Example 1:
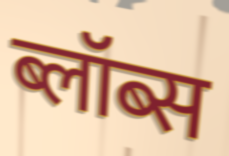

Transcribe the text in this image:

ब्लॉब्स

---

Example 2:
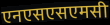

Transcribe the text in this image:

एनएसएसएमसी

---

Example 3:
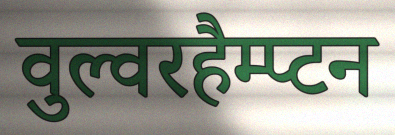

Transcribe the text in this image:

वुल्वरहैम्प्टन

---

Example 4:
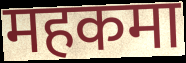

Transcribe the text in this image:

महकमा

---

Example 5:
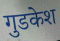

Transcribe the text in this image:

गुडकेश